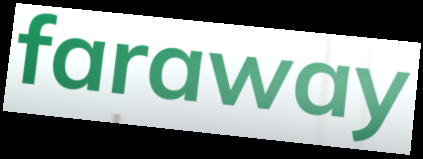
faraway